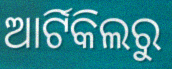
ଆର୍ଟିକିଲରୁ